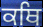
ਕਥਿ